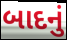
બાદનું